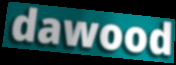
dawood